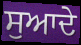
ਸੁਆਦੇ